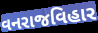
વનરાજવિહાર